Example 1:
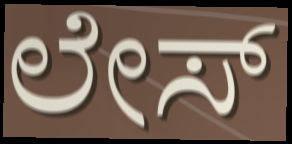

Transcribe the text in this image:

ಲೇಸ್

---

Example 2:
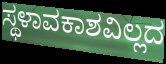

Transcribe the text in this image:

ಸ್ಥಳಾವಕಾಶವಿಲ್ಲದ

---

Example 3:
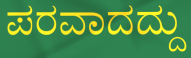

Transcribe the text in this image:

ಪರವಾದದ್ದು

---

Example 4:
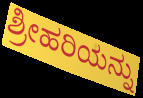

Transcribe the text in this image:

ಶ್ರೀಹರಿಯನ್ನು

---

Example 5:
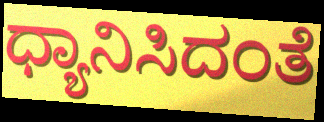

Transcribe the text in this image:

ಧ್ಯಾನಿಸಿದಂತೆ